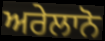
ਅਰੇਲਾਨੋ